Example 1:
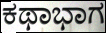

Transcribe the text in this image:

ಕಥಾಭಾಗ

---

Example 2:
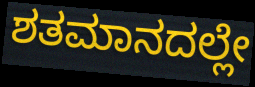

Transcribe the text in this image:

ಶತಮಾನದಲ್ಲೇ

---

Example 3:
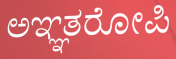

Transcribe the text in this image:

ಅಞ್ಞತರೋಪಿ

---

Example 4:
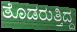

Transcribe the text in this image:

ತೊಡರುತ್ತಿದ್ದ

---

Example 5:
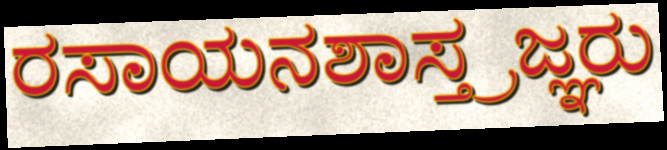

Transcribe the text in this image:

ರಸಾಯನಶಾಸ್ತ್ರಜ್ಞರು